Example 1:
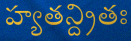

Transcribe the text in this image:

హ్యతన్ద్రితః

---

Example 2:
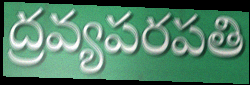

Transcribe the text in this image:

ద్రవ్యపరపతి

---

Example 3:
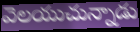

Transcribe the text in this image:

వెలయుచున్నాడు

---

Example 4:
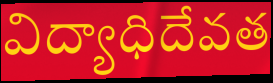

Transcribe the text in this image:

విద్యాధిదేవత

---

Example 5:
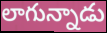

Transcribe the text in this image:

లాగున్నాడు